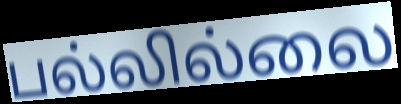
பல்லில்லை